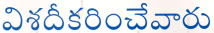
విశదీకరించేవారు